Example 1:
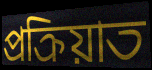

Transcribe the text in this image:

প্ৰক্ৰিয়াত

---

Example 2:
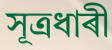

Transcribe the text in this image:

সূত্ৰধাৰী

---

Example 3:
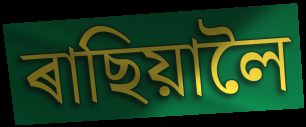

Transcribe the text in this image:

ৰাছিয়ালৈ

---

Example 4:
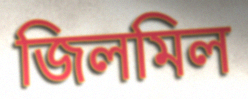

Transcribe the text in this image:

জিলমিল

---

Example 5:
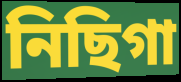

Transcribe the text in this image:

নিছিগা